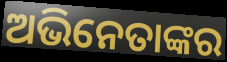
ଅଭିନେତାଙ୍କର